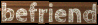
befriend